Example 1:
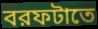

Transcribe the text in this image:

বরফটাতে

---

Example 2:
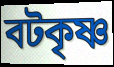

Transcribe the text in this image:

বটকৃষ্ণ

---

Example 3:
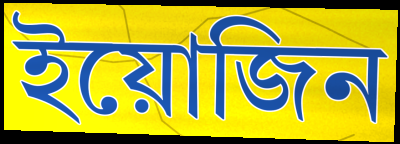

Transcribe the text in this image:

ইয়োজিন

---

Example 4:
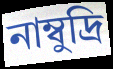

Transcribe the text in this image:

নাম্বুদ্রি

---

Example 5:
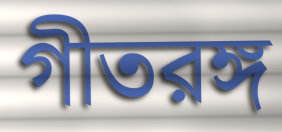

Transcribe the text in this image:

গীতরঙ্গ